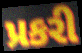
પ્રકરી